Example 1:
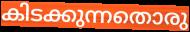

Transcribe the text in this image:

കിടക്കുന്നതൊരു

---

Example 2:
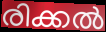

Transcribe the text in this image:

രിക്കൽ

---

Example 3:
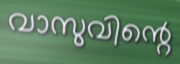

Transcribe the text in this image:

വാസുവിന്റെ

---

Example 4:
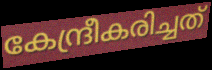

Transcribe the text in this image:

കേന്ദ്രീകരിച്ചത്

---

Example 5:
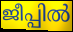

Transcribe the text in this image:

ജീപ്പിൽ